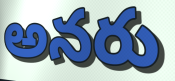
అనరు